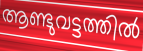
ആണ്ടുവട്ടത്തിൽ